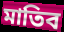
মাতিব